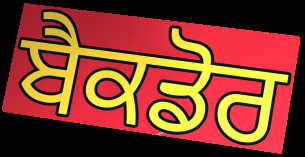
ਬੈਕਡੋਰ